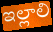
ఇల్లాలి